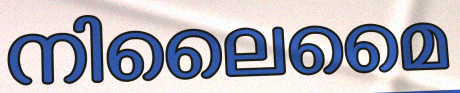
നിലൈമൈ